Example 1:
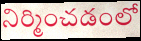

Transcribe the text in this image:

నిర్మించడంలో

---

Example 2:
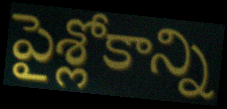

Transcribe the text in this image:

పైశ్లోకాన్ని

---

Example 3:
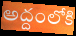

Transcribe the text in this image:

అద్దంలోకి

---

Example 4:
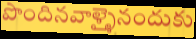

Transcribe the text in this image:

పొందినవాళ్ళైనందుకు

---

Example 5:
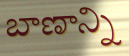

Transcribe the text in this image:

బాణాన్ని